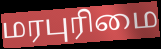
மரபுரிமை